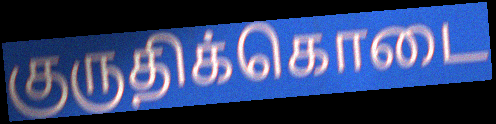
குருதிக்கொடை